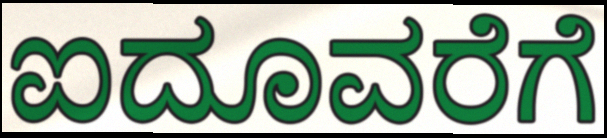
ಐದೂವರೆಗೆ